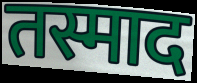
तस्माद